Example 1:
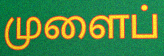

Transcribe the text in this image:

முளைப்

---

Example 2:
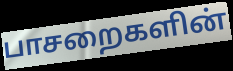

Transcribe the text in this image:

பாசறைகளின்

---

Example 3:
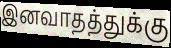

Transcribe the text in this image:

இனவாதத்துக்கு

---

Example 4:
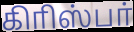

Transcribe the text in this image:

கிரிஸ்பர்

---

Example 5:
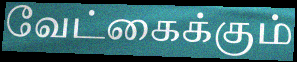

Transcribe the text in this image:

வேட்கைக்கும்